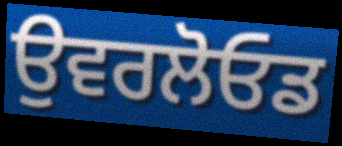
ਉਵਰਲੋਓਡ